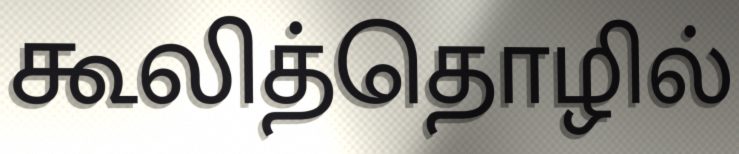
கூலித்தொழில்